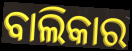
ବାଲିକାର